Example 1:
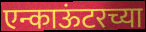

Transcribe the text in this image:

एन्काऊंटरच्या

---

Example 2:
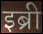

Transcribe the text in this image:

इब्री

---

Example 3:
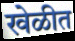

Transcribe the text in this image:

खेळीत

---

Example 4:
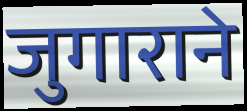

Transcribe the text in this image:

जुगाराने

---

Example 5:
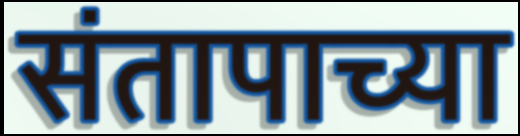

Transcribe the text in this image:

संतापाच्या